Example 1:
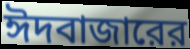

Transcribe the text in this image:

ঈদবাজারের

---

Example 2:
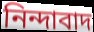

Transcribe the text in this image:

নিন্দাবাদ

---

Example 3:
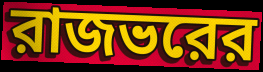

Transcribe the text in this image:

রাজভরের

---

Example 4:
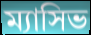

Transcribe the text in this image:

ম্যাসিভ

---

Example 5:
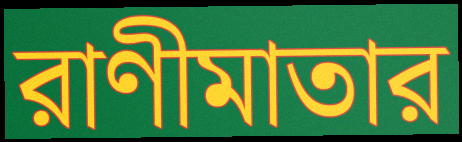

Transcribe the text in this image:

রাণীমাতার